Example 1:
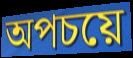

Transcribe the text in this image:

অপচয়ে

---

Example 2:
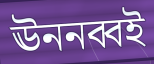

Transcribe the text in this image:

ঊননব্বই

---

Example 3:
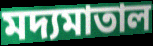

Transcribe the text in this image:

মদ্যমাতাল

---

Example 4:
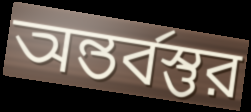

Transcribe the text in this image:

অন্তর্বস্তুর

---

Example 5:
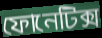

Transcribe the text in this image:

ফোনেটিক্স